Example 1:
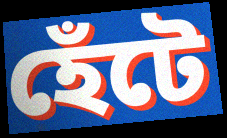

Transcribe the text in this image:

হেঁটে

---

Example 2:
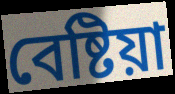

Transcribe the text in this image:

বেষ্টিয়া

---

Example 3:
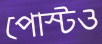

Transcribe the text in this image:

পোস্টও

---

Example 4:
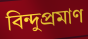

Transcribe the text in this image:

বিন্দুপ্রমাণ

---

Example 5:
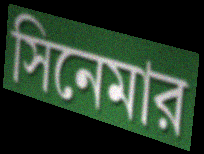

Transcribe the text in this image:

সিনেমার